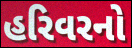
હરિવરનો